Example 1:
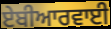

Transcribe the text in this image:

ਏਬੀਆਰਵਾਈ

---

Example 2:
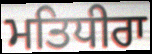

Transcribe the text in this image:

ਮਤਿਧੀਰਾ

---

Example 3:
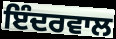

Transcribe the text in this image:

ਇੰਦਰਵਾਲ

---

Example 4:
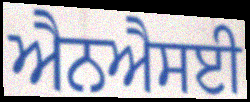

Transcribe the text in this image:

ਐਨਐਸਈ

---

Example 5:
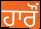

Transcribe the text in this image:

ਹਾਰੌਂ